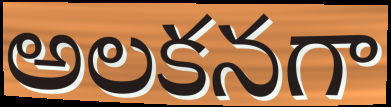
అలకనగా